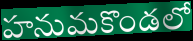
హనుమకొండలో